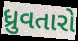
ધ્રુવતારો